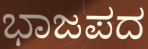
ಭಾಜಪದ